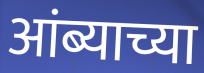
आंब्याच्या